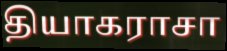
தியாகராசா